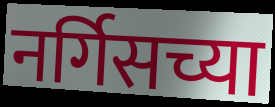
नर्गिसच्या